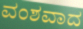
ವಂಶವಾದ